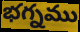
భగ్నము